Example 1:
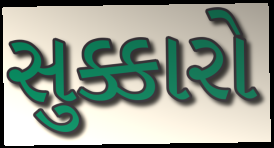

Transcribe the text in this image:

સુક્કારો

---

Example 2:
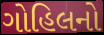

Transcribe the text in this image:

ગોહિલનો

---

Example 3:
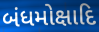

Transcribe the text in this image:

બંધમોક્ષાદિ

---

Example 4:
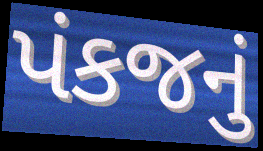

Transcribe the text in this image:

પંકજનું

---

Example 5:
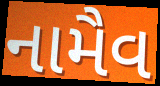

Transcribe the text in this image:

નામૈવ